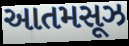
આતમસૂઝ